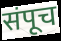
संपूच